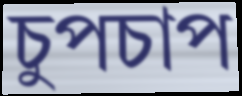
চুপচাপ